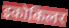
इकोकिलर